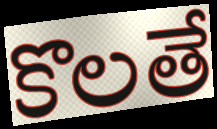
కొలతే